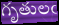
గృతులఁ